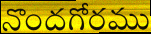
నొందగోరము